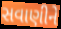
સવાણીને